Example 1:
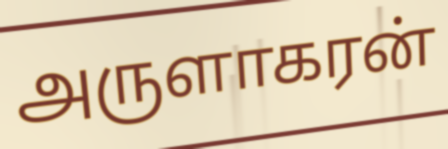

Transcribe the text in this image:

அருளாகரன்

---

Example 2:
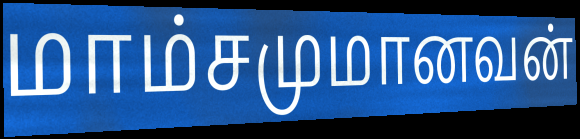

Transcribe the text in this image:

மாம்சமுமானவன்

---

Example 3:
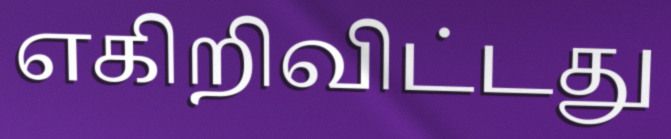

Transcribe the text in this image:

எகிறிவிட்டது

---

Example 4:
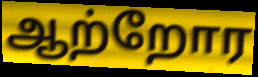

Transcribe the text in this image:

ஆற்றோர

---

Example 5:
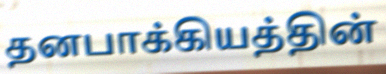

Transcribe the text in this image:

தனபாக்கியத்தின்